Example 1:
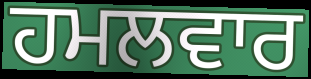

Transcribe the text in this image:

ਹਮਲਵਾਰ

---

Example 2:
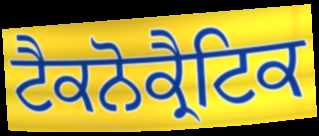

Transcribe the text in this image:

ਟੈਕਨੋਕ੍ਰੈਟਿਕ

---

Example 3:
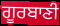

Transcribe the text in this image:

ਗੂਰਬਾਣੀ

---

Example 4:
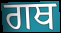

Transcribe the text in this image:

ਗਥ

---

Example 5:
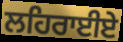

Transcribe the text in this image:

ਲਹਿਰਾਈਏ